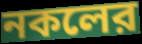
নকলের